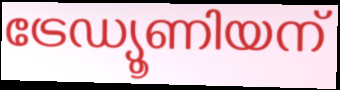
ട്രേഡ്യൂണിയന്